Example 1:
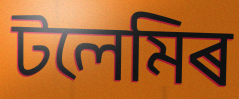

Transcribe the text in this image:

টলেমিৰ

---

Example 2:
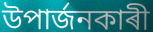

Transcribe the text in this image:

উপাৰ্জনকাৰী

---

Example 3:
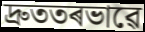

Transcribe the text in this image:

দ্ৰুততৰভাৱে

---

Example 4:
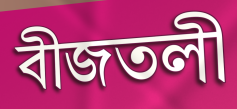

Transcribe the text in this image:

বীজতলী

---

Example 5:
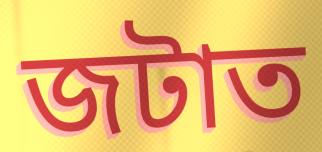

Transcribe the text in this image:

জটাত